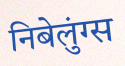
निबेलुंग्स